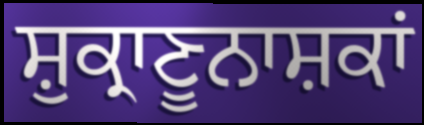
ਸ਼ੁਕ੍ਰਾਣੂਨਾਸ਼ਕਾਂ